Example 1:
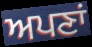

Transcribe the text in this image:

ਅਪਣਾਂ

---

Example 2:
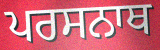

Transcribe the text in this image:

ਪਰਸਨਾਥ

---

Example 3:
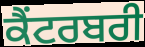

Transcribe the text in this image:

ਕੈਂਟਰਬਰੀ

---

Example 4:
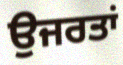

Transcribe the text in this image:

ਉਜਰਤਾਂ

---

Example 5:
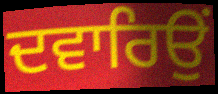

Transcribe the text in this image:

ਦਵਾਰਿਉਂ